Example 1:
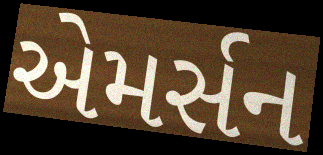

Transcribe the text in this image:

એમર્સન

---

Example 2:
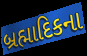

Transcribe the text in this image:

બ્રહ્માદિકના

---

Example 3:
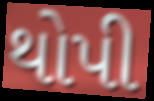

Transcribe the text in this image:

થોપી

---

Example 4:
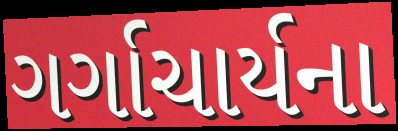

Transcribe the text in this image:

ગર્ગાચાર્યના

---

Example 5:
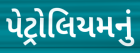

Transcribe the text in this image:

પેટ્રોલિયમનું